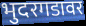
भुदरगडावर